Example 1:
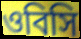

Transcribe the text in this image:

ওবিসি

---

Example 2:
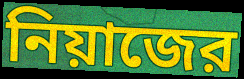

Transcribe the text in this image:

নিয়াজের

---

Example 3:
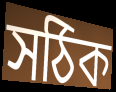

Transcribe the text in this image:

সঠিক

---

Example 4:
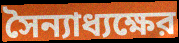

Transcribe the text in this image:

সৈন্যাধ্যক্ষের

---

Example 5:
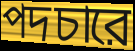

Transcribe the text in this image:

পদচারে